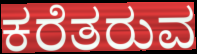
ಕರೆತರುವ